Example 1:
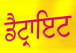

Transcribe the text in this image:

ਡੈਟ੍ਰਾਇਟ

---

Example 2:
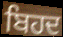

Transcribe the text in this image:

ਬਿਹਦ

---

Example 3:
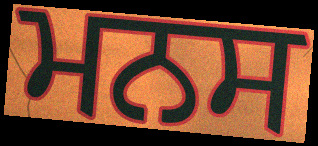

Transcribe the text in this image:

ਮਨਸ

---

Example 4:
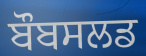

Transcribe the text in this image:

ਬੌਬਸਲਡ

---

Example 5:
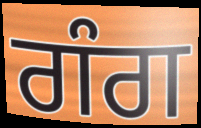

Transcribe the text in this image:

ਗੰਗ